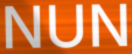
NUN